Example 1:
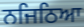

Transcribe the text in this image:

ਨਜਿਠਿਆ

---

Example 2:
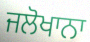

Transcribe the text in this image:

ਜਲੋਖਾਨਾ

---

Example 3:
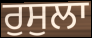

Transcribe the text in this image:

ਰੁਸੁਲਾ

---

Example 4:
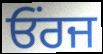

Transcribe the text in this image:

ਓਂਰਜ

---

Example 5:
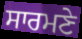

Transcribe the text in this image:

ਸਾਰਮਣੇ